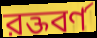
রক্তবর্ণ